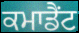
ਕਮਾਡੈਂਟ